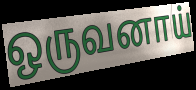
ஒருவனாய்